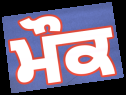
ਮੌਕ